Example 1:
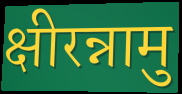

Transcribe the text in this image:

क्षीरन्नामु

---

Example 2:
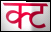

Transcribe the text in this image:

क्ट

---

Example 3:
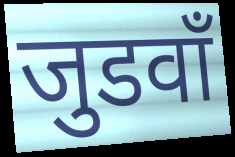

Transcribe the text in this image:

जुडवाँ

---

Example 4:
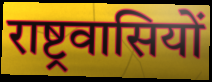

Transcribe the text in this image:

राष्ट्रवासियों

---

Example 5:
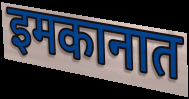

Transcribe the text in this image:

इमकानात